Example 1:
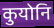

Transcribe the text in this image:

कुयोनि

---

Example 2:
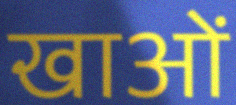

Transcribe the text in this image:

खाओं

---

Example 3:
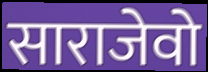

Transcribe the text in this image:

साराजेवो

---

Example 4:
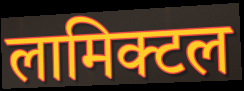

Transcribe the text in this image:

लामिक्टल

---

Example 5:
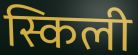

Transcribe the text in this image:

स्किली